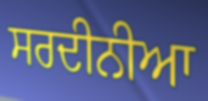
ਸਰਦੀਨੀਆ